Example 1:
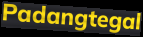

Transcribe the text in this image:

Padangtegal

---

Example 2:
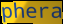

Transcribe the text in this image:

phera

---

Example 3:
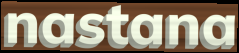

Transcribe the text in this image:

nastana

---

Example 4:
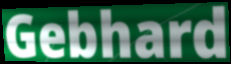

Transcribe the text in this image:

Gebhard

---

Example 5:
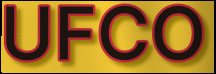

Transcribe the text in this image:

UFCO